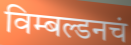
विम्बल्डनचं